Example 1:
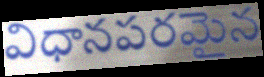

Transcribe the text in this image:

విధానపరమైన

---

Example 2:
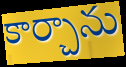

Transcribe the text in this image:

కార్చాను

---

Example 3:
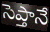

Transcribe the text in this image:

సెప్తానే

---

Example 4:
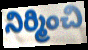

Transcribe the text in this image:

నిర్మించి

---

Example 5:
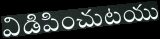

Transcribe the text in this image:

విడిపించుటయు